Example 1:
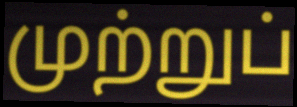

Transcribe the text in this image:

முற்றுப்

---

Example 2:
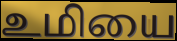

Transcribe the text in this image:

உமியை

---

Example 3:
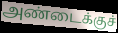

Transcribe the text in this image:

அண்டைக்குச்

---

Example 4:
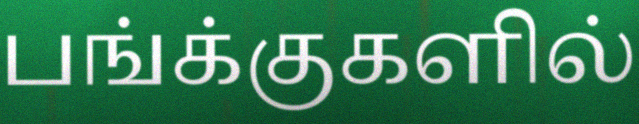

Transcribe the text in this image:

பங்க்குகளில்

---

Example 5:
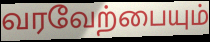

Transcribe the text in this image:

வரவேற்பையும்